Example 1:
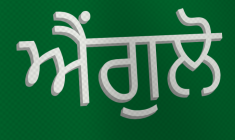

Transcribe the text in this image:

ਐਂਗੁਲੋ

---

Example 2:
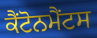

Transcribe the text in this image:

ਕੈਂਟੋਨਮੈਂਟਸ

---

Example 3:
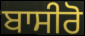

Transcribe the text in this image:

ਬਾਸੀਰੋ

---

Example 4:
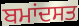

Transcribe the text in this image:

ਬਮਾਂਦਸਤ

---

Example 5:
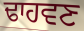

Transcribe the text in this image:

ਢਾਹਵਣ